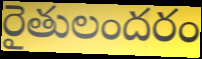
రైతులందరం